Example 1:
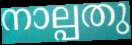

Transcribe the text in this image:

നാല്പതു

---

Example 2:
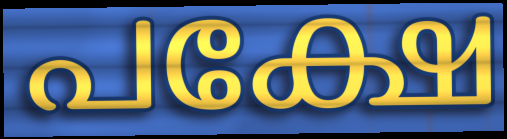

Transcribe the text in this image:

പക്ഷേ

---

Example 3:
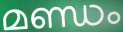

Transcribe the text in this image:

മണ്ഡം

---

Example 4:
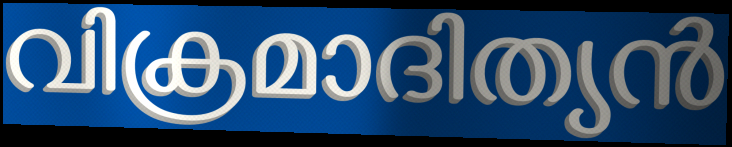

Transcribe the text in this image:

വിക്രമാദിത്യൻ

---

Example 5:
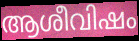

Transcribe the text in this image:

ആശീവിഷം